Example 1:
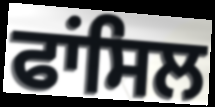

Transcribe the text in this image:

ਫਾਂਸਿਲ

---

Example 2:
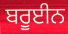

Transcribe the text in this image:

ਬਰੂਈਨ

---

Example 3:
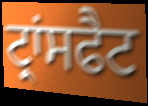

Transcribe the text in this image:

ਟ੍ਰਾਂਸਫੈਟ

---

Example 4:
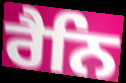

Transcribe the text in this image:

ਰੈਨਿ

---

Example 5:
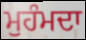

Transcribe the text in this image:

ਮੁਹੰਮਦਾ